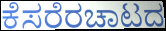
ಕೆಸರೆರಚಾಟದ